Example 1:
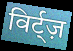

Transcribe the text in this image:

विर्ट्ज़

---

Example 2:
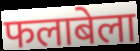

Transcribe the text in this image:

फलाबेला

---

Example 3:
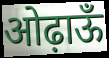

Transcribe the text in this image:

ओढ़ाऊँ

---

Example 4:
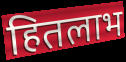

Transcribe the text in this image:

हितलाभ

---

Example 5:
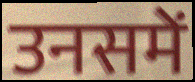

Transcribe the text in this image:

उनसमें